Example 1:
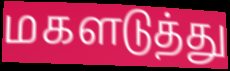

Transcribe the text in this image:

மகளடுத்து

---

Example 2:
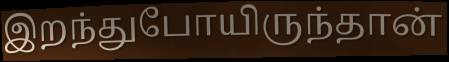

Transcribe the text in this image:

இறந்துபோயிருந்தான்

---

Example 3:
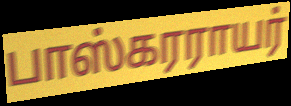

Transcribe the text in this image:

பாஸ்கரராயர்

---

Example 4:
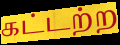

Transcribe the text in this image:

கட்டற்ற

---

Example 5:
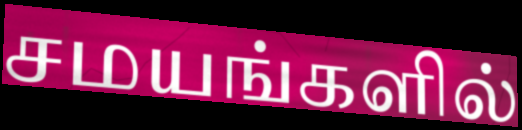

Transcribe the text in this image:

சமயங்களில்